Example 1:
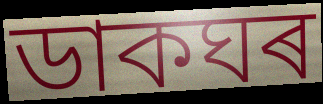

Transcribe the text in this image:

ডাকঘৰ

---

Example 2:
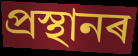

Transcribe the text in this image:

প্ৰস্থানৰ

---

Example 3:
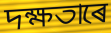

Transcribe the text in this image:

দক্ষতাৰে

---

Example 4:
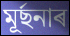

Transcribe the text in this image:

মূৰ্ছনাৰ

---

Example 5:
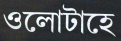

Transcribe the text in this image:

ওলোটাহে